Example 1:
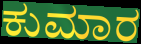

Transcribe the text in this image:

ಕುಮಾರ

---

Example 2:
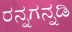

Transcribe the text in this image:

ರನ್ನಗನ್ನಡಿ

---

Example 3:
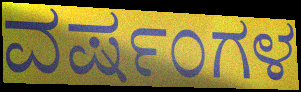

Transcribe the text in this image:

ವರ್ಷಂಗಳ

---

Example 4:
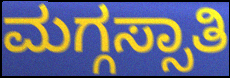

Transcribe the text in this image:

ಮಗ್ಗಸ್ಸಾತಿ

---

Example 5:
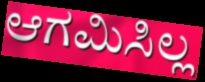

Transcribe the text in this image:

ಆಗಮಿಸಿಲ್ಲ